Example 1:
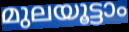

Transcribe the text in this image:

മുലയൂട്ടാം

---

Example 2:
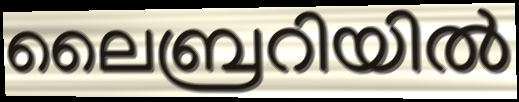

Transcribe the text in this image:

ലൈബ്രറിയിൽ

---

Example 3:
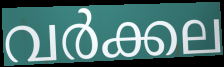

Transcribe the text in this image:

വർക്കല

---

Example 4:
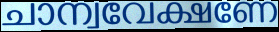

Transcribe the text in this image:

ചാന്വവേക്ഷണേ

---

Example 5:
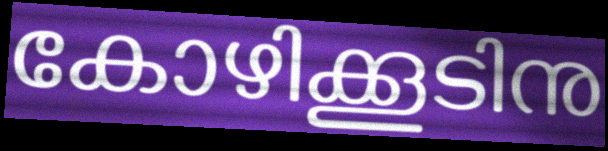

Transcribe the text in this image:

കോഴിക്കൂടിനു